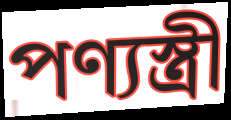
পণ্যস্ত্রী